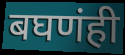
बघणंही